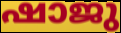
ഷാജു